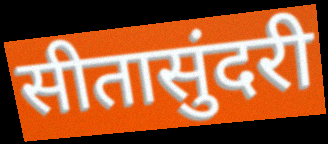
सीतासुंदरी